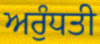
ਅਰੁੰਧਤੀ